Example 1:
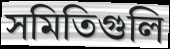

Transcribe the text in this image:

সমিতিগুলি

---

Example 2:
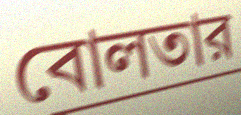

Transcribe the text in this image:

বোলতার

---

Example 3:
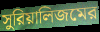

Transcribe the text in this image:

সুরিয়ালিজমের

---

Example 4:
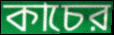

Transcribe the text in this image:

কাচের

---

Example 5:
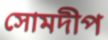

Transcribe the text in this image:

সোমদীপ